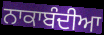
ਨਾਕਾਬੰਦੀਆ